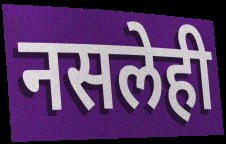
नसलेही